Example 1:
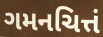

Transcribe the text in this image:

ગમનચિત્તં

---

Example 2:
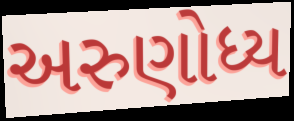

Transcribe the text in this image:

અરુણોધ્ય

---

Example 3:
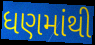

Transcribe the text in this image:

ધણમાંથી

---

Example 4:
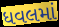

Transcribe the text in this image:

ધવલમાં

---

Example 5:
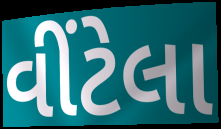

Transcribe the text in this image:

વીંટેલા